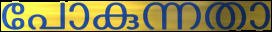
പോകുന്നതാ